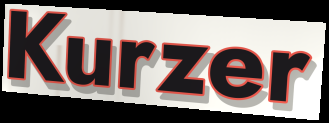
Kurzer